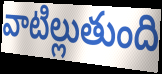
వాటిల్లుతుంది